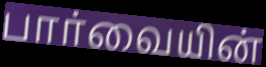
பார்வையின்